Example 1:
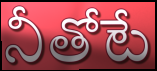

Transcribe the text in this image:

నీతోటే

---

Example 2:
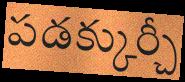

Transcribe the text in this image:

పడక్కుర్చీ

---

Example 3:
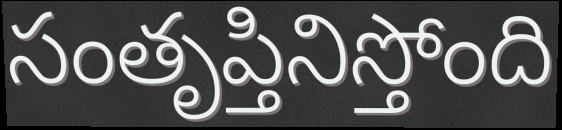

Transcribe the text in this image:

సంతృప్తినిస్తోంది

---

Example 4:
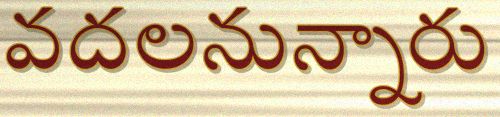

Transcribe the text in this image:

వదలనున్నారు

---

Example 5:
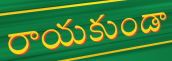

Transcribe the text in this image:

రాయకుండా